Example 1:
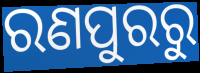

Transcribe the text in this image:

ରଣପୁରରୁ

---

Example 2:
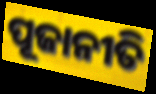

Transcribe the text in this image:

ପୂଜାନୀତି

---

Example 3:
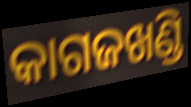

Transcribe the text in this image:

କାଗଜଖଣ୍ଡି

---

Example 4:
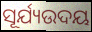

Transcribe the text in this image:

ସୂର୍ଯ୍ୟଉଦୟ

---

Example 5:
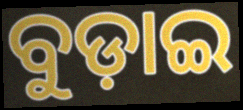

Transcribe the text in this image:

ବୁଡ଼ାଇ